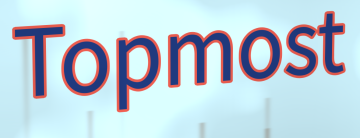
Topmost